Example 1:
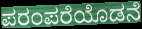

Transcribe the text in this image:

ಪರಂಪರೆಯೊಡನೆ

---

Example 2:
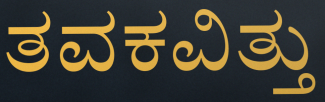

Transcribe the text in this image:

ತವಕವಿತ್ತು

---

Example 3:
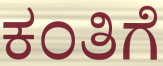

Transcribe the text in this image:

ಕಂತಿಗೆ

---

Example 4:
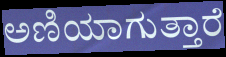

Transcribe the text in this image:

ಅಣಿಯಾಗುತ್ತಾರೆ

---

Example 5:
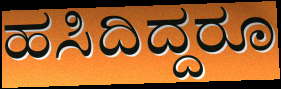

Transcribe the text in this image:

ಹಸಿದಿದ್ದರೂ